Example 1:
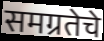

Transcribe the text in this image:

समग्रतेचे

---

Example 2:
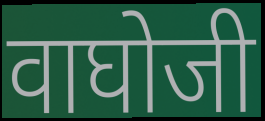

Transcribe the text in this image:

वाघोजी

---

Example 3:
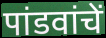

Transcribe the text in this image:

पांडवांचें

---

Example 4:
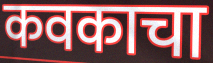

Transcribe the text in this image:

कवकाचा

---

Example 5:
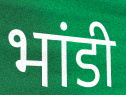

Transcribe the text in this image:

भांडी